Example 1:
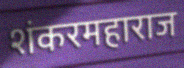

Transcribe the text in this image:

शंकरमहाराज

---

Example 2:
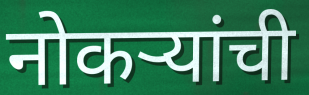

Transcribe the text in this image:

नोकऱ्यांची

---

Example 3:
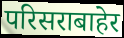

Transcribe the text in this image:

परिसराबाहेर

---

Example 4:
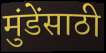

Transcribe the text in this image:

मुंडेंसाठी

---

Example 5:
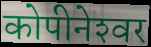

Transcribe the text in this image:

कोपीनेश्वर